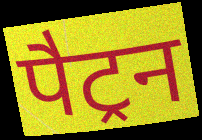
पैट्रन